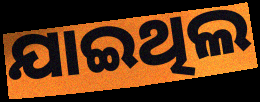
ଯାଇଥିଲ